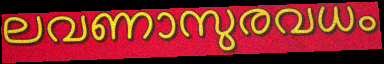
ലവണാസുരവധം